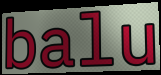
balu